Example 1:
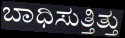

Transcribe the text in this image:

ಬಾಧಿಸುತ್ತಿತ್ತು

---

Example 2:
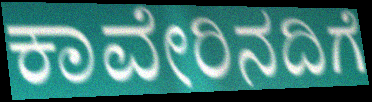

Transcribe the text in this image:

ಕಾವೇರಿನದಿಗೆ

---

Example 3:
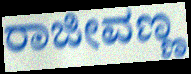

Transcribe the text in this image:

ರಾಜೀವಣ್ಣ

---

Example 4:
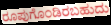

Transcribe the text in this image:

ರೂಪುಗೊಂಡಿರಬಹುದು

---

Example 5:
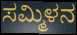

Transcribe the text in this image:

ಸಮ್ಮಿಳನ